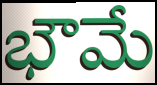
భౌమే